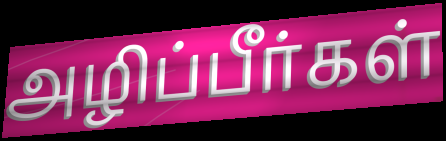
அழிப்பீர்கள்